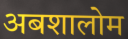
अबशालोम